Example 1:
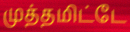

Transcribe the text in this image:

முத்தமிட்டே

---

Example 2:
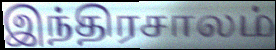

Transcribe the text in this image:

இந்திரசாலம்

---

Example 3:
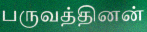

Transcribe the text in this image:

பருவத்தினன்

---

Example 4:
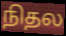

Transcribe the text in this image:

நிதல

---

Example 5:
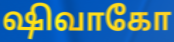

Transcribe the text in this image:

ஷிவாகோ